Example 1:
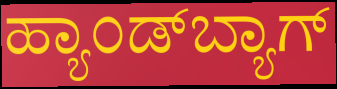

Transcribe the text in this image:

ಹ್ಯಾಂಡ್‌ಬ್ಯಾಗ್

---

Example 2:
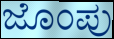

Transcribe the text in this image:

ಜೊಂಪು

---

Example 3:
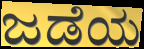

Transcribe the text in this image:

ಜಡೆಯ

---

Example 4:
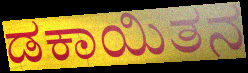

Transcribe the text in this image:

ಡಕಾಯಿತನ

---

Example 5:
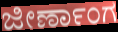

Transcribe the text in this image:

ಜೀರ್ಣಾಂಗ